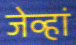
जेव्हां